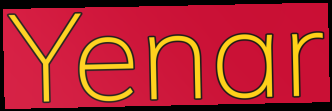
Yenar